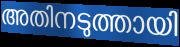
അതിനടുത്തായി